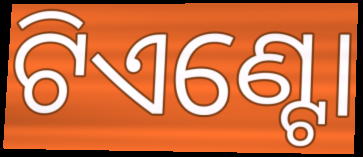
ଟିଏଣ୍ଟୋ